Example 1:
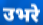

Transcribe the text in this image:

उभरे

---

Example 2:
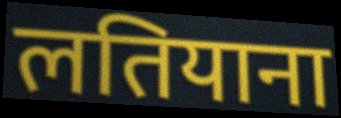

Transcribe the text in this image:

लतियाना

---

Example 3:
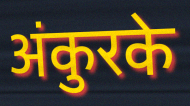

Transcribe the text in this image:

अंकुरके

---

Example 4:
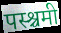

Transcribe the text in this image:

पस्श्चमी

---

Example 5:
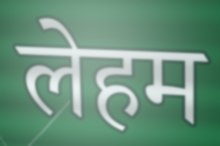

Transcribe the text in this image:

लेहम